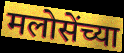
मलोसेंच्या